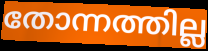
തോന്നത്തില്ല